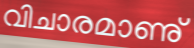
വിചാരമാണു്